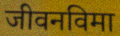
जीवनविमा